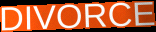
DIVORCE